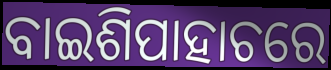
ବାଇଶିପାହାଚରେ